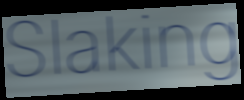
Slaking